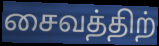
சைவத்திற்